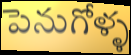
పెనుగోళ్ళ